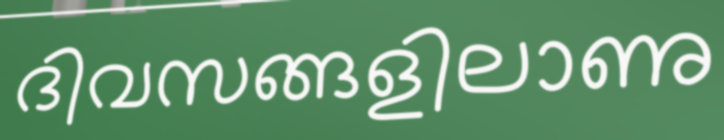
ദിവസങ്ങളിലാണു